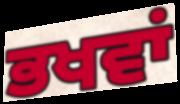
ਭਖਵਾਂ